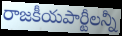
రాజకీయపార్టీలన్నీ